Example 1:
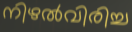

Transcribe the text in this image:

നിഴൽവിരിച്ച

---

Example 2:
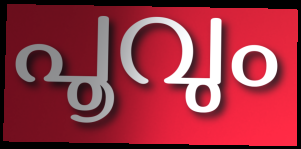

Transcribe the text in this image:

പൂവും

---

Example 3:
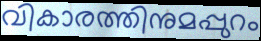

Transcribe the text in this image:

വികാരത്തിനുമപ്പുറം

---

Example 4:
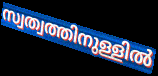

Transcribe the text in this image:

സ്വത്വത്തിനുള്ളിൽ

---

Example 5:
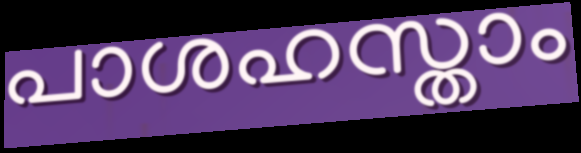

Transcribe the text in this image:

പാശഹസ്താം